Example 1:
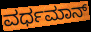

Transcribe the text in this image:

ವರ್ಧಮಾನ್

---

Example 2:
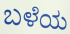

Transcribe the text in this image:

ಬಳೆಯ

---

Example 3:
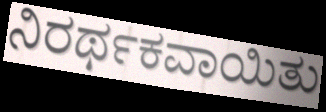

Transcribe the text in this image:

ನಿರರ್ಥಕವಾಯಿತು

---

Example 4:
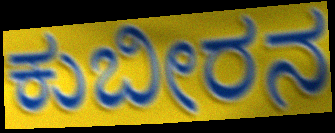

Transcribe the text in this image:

ಕುಬೀರನ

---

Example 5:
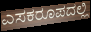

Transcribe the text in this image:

ಎಸಕರೂಪದಲ್ಲಿ